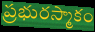
ప్రభురస్మాకం